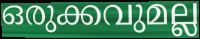
ഒരുക്കവുമല്ല